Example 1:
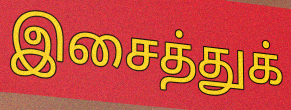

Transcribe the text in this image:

இசைத்துக்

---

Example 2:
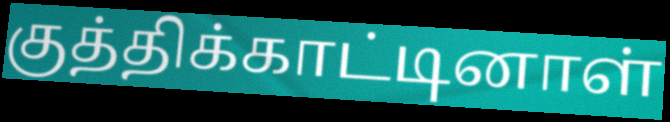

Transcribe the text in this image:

குத்திக்காட்டினாள்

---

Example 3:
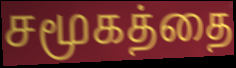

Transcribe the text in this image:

சமூகத்தை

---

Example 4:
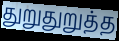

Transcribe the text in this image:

துறுதுறுத்த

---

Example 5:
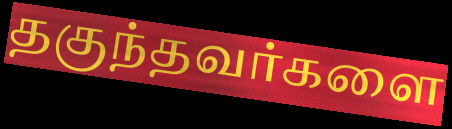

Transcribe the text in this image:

தகுந்தவர்களை